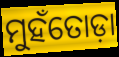
ମୁହଁତୋଡ଼ା